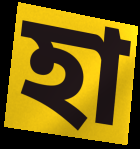
হা